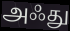
அஃது